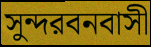
সুন্দরবনবাসী